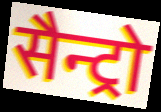
सैन्ट्रो